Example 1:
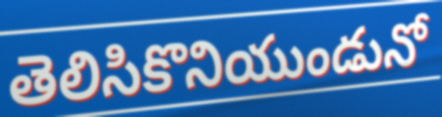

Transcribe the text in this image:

తెలిసికొనియుండునో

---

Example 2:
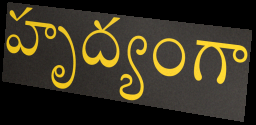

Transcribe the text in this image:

హృద్యంగా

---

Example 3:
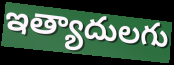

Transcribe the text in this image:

ఇత్యాదులగు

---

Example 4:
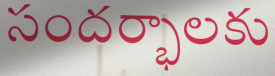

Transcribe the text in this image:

సందర్భాలకు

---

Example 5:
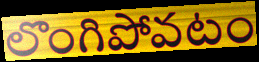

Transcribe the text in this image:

లొంగిపోవటం